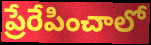
ప్రేరేపించాలో